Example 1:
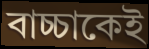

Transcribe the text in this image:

বাচ্চাকেই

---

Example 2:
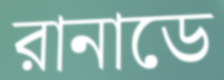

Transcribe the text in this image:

রানাডে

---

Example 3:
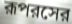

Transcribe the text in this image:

রূপরসের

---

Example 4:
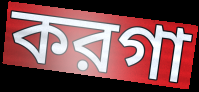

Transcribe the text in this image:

করগা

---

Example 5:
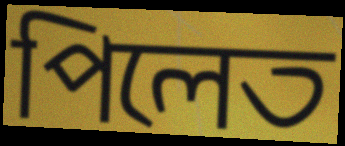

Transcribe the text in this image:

পিলেত